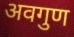
अवगुण